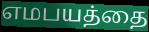
எமபயத்தை